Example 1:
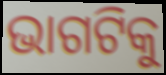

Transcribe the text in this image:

ଭାଗଟିକୁ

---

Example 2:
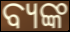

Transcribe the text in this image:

ବ୍ୟଙ୍କ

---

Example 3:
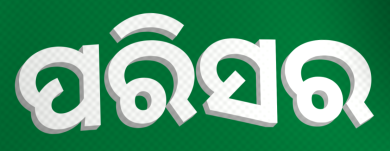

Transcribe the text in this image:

ପରିସର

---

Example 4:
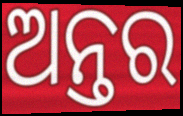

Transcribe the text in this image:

ଅନ୍ତର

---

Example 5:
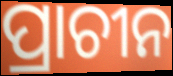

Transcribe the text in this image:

ପ୍ରାଚୀନ